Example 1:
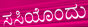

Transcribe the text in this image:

ಸಸಿಯೊಂದು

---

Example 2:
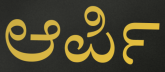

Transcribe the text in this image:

ಆರ್ಪಿ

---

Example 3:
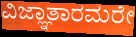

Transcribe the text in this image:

ವಿಜ್ಞಾತಾರಮರೇ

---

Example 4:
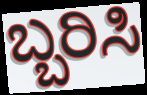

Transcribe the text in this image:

ಬ್ಬರಿಸಿ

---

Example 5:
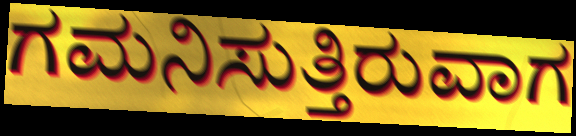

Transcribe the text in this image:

ಗಮನಿಸುತ್ತಿರುವಾಗ